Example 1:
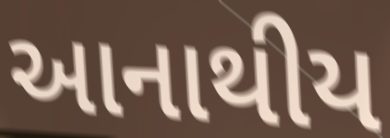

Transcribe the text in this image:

આનાથીય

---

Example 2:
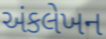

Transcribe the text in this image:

અંકલેખન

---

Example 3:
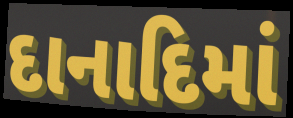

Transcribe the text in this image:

દાનાદિમાં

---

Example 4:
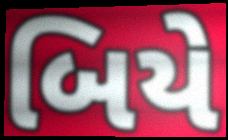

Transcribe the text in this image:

બિયે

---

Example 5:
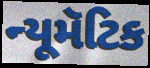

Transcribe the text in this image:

ન્યૂમૅટિક